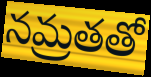
నమ్రతతో